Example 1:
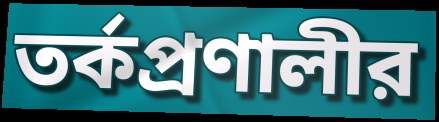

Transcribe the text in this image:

তর্কপ্রণালীর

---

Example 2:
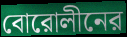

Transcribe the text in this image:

বোরোলীনের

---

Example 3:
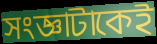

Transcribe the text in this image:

সংজ্ঞাটাকেই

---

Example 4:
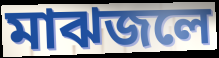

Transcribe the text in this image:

মাঝজলে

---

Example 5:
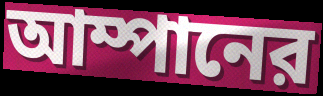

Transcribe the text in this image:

আম্পানের